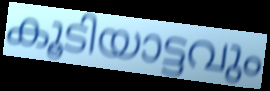
കൂടിയാട്ടവും